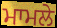
ਮਾਮਲੇ